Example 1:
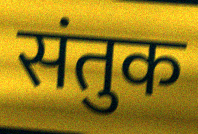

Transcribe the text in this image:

संतुक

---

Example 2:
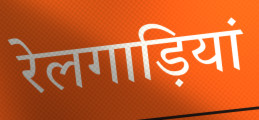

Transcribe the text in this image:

रेलगाड़ियां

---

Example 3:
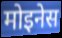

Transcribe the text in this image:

मोइनेस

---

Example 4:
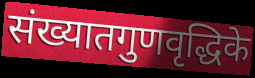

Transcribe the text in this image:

संख्यातगुणवृद्धिके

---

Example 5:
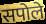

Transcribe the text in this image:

सपोले